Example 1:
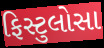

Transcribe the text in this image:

ફિસ્ટુલોસા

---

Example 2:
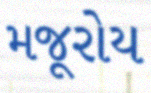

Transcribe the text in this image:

મજૂરોય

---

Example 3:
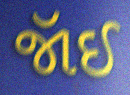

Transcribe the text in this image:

જૉઈ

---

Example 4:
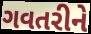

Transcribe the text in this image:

ગવતરીને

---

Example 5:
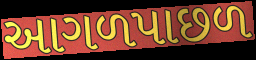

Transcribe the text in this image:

આગળપાછળ